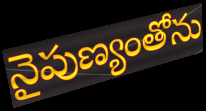
నైపుణ్యంతోను